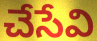
చేసేవి